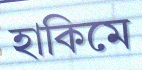
হাকিমে